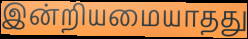
இன்றியமையாதது